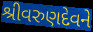
શ્રીવરુણદેવને